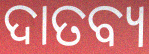
ଦାତବ୍ୟ